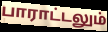
பாராட்டலும்